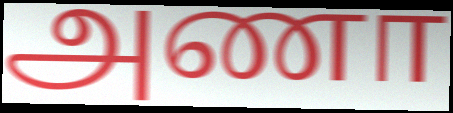
அணா